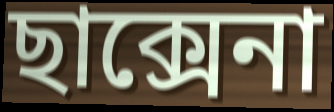
ছাক্সেনা